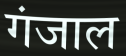
गंजाल